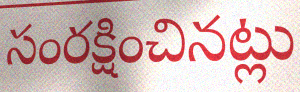
సంరక్షించినట్లు